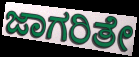
ಜಾಗರಿತೇ